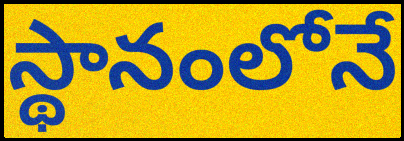
స్థానంలోనే